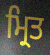
ਮ੍ਰਿਤ